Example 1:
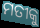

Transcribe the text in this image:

ମତୀକୁ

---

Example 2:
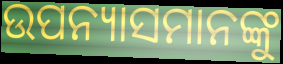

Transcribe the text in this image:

ଉପନ୍ୟାସମାନଙ୍କୁ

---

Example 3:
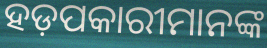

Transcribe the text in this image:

ହଡ଼ପକାରୀମାନଙ୍କ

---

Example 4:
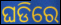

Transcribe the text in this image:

ଘଡିରେ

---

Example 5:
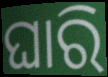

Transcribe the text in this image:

ଘାରି